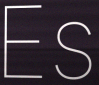
Es